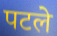
पटले